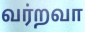
வர்றவா